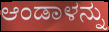
ಆಂಡಾಳನ್ನು